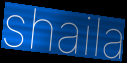
shaila